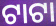
ଟାଟା